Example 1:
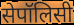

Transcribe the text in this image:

सेपॉलिसी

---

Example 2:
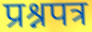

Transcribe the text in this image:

प्रश्नपत्र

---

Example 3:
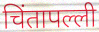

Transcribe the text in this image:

चिंतापल्ली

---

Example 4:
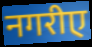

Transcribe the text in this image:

नगरीए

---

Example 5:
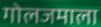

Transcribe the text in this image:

गोलजमाला